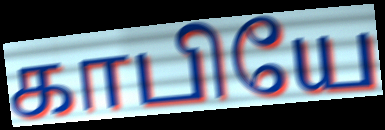
காபியே